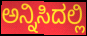
ಅನ್ನಿಸಿದಲ್ಲಿ